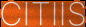
CITIIS